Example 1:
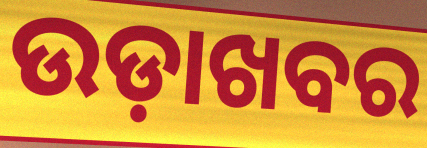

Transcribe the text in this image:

ଉଡ଼ାଖବର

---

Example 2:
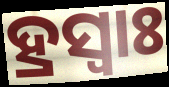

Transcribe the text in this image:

ହ୍ରସ୍ଵାଃ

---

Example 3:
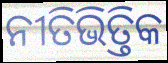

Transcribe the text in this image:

ନୀତିଭିତ୍ତିକ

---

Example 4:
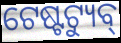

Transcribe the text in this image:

ଟେଷ୍ଟଟ୍ୟୁବ୍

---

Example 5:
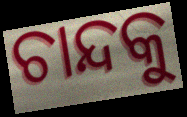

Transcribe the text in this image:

ଚାନ୍ଦକୁ